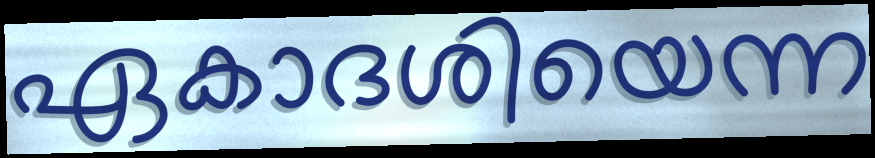
ഏകാദശിയെന്ന